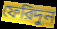
ফেরিদুন